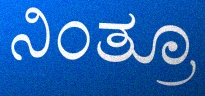
ನಿಂತ್ರೂ